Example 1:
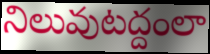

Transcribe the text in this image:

నిలువుటద్దంలా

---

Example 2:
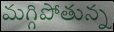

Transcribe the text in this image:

మగ్గిపోతున్న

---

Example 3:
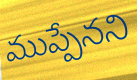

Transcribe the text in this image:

ముప్పేనని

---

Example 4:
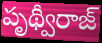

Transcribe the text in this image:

పృథ్వీరాజ్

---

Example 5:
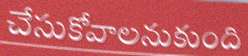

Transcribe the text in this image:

చేసుకోవాలనుకుంది